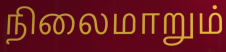
நிலைமாறும்